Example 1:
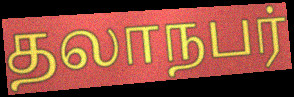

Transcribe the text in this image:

தலாநபர்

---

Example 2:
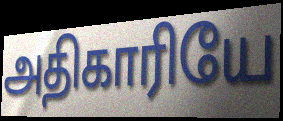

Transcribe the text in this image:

அதிகாரியே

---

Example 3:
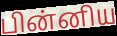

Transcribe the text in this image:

பின்னிய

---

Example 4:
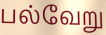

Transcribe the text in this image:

பல்வேறு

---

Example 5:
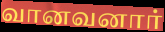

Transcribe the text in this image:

வானவனார்